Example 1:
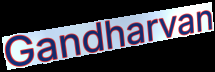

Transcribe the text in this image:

Gandharvan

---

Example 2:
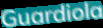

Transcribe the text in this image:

Guardiola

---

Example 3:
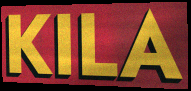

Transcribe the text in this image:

KILA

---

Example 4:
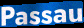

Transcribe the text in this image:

Passau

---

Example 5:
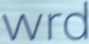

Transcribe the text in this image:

wrd